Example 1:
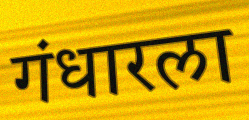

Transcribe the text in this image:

गंधारला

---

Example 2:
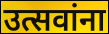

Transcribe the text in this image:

उत्सवांना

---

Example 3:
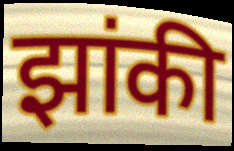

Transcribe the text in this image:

झांकी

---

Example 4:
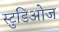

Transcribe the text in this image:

स्टुडिओज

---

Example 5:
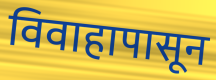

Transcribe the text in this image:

विवाहापासून